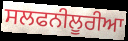
ਸਲਫਨੀਲੂਰੀਆ